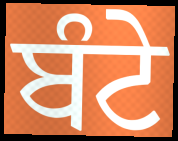
ਬੰਟੇ